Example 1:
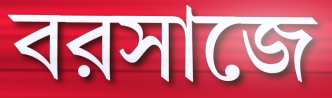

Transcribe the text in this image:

বরসাজে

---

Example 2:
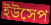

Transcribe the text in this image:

ইউসেপ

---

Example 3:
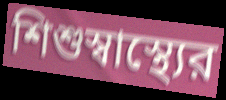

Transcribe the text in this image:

শিশুস্বাস্থ্যের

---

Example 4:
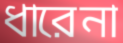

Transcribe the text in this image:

ধারেনা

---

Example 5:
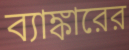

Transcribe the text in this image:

ব্যাঙ্কারের